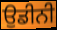
ਉਡੀਨੀ